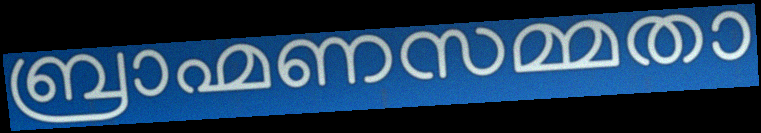
ബ്രാഹ്മണസമ്മതാ